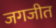
जगजीत